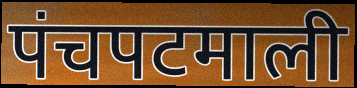
पंचपटमाली